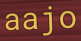
aajo